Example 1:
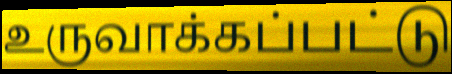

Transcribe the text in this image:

உருவாக்கப்பட்டு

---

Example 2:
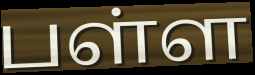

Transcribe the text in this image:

பள்ள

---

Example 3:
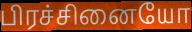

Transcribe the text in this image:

பிரச்சினையோ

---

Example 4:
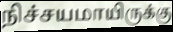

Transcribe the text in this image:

நிச்சயமாயிருக்கு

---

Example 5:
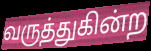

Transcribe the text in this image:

வருத்துகின்ற